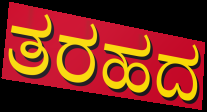
ತರಹದ